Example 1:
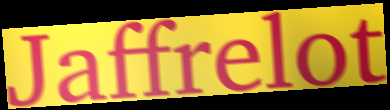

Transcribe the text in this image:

Jaffrelot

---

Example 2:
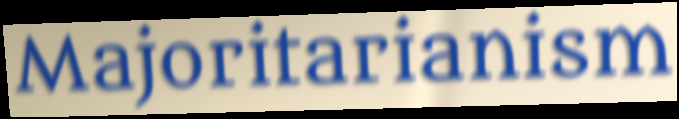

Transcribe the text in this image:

Majoritarianism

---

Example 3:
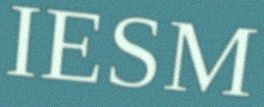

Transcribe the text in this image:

IESM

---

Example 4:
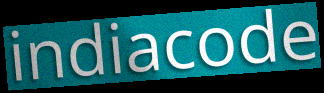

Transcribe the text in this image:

indiacode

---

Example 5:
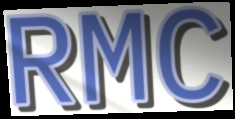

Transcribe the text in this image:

RMC